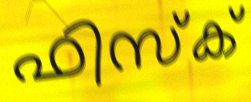
ഫിസ്ക്